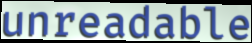
unreadable